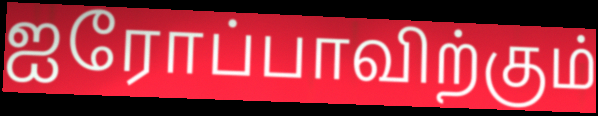
ஐரோப்பாவிற்கும்